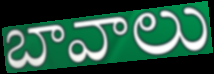
బావాలు